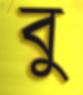
বু